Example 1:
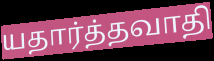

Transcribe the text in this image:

யதார்த்தவாதி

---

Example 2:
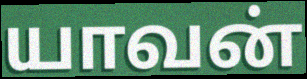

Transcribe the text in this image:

யாவன்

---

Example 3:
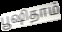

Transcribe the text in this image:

பூஷிதாம்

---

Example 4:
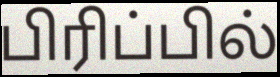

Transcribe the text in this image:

பிரிப்பில்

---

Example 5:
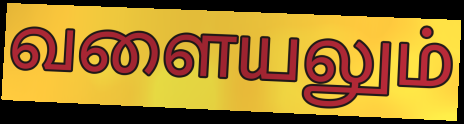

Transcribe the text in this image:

வளையலும்